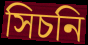
সিচনি